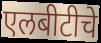
एलबीटीचे